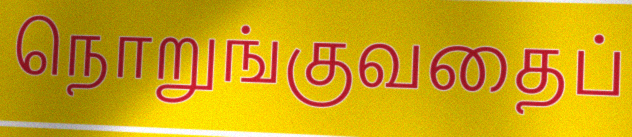
நொறுங்குவதைப்